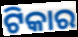
ଟିକାର